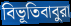
বিভূতিবাবুরা